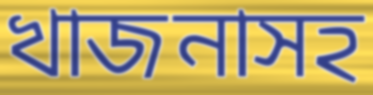
খাজনাসহ